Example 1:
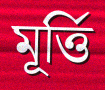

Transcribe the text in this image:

মূর্ত্তি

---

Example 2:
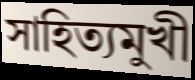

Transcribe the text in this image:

সাহিত্যমুখী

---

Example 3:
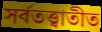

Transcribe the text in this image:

সর্বতত্ত্বাতীত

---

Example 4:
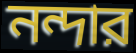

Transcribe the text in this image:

নন্দার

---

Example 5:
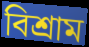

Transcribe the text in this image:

বিশ্রাম